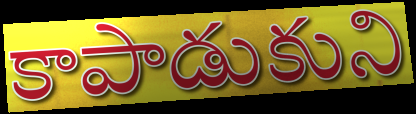
కాపాడుకుని